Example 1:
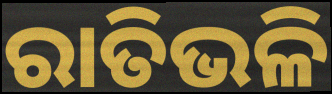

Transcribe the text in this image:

ରାତିଭଳି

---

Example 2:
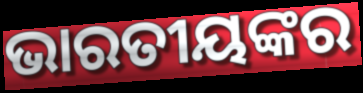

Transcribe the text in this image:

ଭାରତୀୟଙ୍କର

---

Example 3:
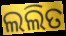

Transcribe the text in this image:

ଲଲିତ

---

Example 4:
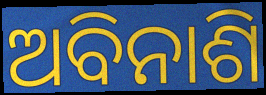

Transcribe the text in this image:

ଅବିନାଶି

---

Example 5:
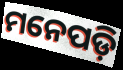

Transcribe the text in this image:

ମନେପଡ଼ି